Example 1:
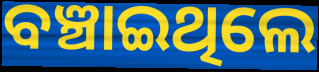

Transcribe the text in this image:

ବଞ୍ଚାଇଥିଲେ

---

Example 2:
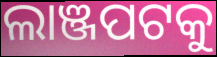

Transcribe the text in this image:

ଲାଞ୍ଜପଟକୁ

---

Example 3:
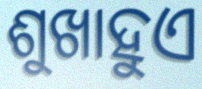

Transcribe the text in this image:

ଶୁଖାହୁଏ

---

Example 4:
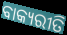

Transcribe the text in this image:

ବାକ୍ୟରୀତି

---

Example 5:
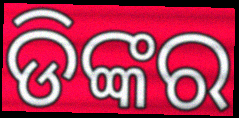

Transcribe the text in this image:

ଡିଙ୍କର